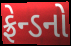
ફ્રેન્ડનો